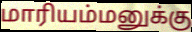
மாரியம்மனுக்கு